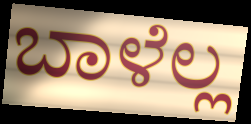
ಬಾಳೆಲ್ಲ